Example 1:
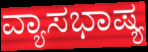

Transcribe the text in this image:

ವ್ಯಾಸಭಾಷ್ಯ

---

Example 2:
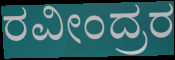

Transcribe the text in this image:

ರವೀಂದ್ರರ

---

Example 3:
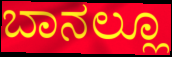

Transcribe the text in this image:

ಬಾನಲ್ಲೂ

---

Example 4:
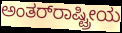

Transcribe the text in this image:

ಅಂತರ್‌ರಾಷ್ಟ್ರೀಯ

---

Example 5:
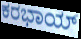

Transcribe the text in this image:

ಕರಭಾಯ್